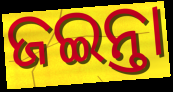
ଜଇନ୍ତା